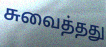
சுவைத்தது